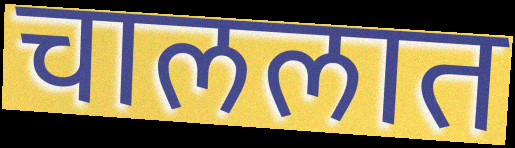
चाललात